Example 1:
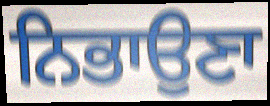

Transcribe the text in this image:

ਨਿਭਾਉਣਾ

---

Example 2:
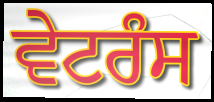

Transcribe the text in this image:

ਵੇਟਰੰਸ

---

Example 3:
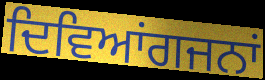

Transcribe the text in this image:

ਦਿਵਿਆਂਗਜਨਾਂ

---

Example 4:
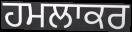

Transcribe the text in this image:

ਹਮਲਾਕਰ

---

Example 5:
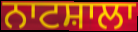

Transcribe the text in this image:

ਨਾਟਸ਼ਾਲਾ